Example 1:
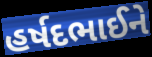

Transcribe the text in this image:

હર્ષદભાઈને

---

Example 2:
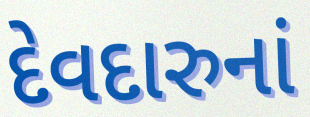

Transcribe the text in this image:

દેવદારુનાં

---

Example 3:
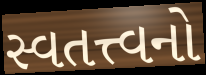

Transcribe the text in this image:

સ્વતત્ત્વનો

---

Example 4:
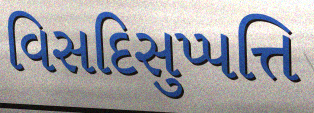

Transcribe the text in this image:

વિસદિસુપ્પત્તિ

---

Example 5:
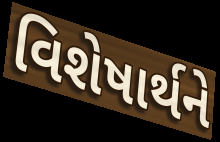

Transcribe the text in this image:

વિશેષાર્થને